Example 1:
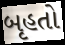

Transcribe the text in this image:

બૃહતો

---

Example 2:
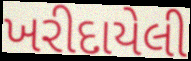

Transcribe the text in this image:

ખરીદાયેલી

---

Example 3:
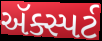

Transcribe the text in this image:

ઍક્સ્પર્ટ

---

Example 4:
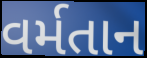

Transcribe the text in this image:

વર્મતાન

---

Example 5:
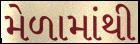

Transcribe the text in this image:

મેળામાંથી